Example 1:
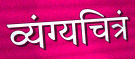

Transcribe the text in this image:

व्यंग्यचित्रं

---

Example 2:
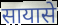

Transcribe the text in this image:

सायासे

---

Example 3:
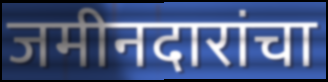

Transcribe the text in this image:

जमीनदारांचा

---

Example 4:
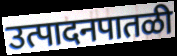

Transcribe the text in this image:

उत्पादनपातळी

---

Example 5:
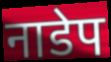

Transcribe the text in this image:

नाडेप